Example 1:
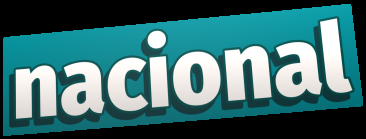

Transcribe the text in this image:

nacional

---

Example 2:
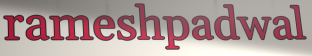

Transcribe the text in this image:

rameshpadwal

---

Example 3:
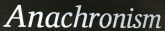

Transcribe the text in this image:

Anachronism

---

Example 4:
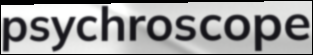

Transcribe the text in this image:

psychroscope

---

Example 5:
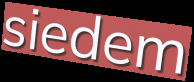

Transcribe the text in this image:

siedem